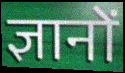
ज्ञानों